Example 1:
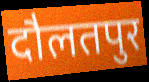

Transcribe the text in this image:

दौलतपुर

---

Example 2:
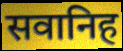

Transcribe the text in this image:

सवानिह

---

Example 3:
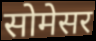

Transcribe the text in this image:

सोमेसर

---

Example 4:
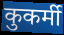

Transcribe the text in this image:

कुकर्मी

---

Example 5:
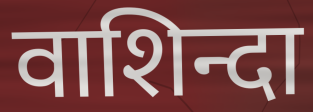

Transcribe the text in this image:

वाशिन्दा